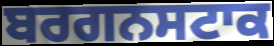
ਬਰਗਨਸਟਾਕ